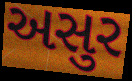
અસુર